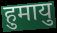
हुमायु